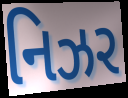
નિઝર